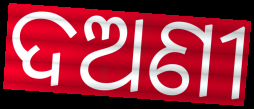
ଦଅଣୀ